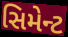
સિમેન્ટ